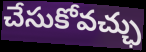
చేసుకోవచ్ఛు